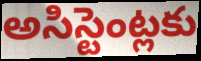
అసిస్టెంట్లకు